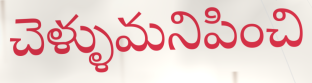
చెళ్ళుమనిపించి